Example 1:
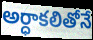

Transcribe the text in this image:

అర్ధాకలితోనే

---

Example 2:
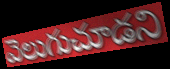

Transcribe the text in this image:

వెలుగుచూడని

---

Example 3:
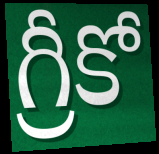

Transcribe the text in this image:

గ్రీకో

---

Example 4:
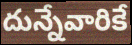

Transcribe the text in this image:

దున్నేవారికే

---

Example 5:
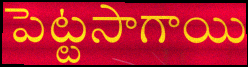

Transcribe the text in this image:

పెట్టసాగాయి